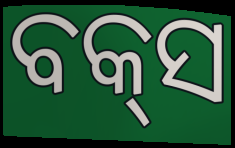
ବକ୍‍ସ